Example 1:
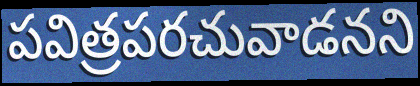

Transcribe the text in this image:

పవిత్రపరచువాడనని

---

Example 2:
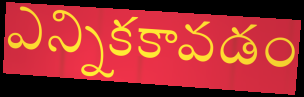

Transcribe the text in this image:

ఎన్నికకావడం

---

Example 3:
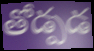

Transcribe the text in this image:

తోడ్పడ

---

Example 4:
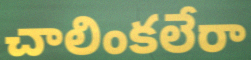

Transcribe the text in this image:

చాలింకలేరా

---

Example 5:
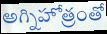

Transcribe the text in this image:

అగ్నిహోత్రంతో